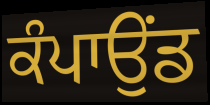
ਕੰਪਾਉਂਡ